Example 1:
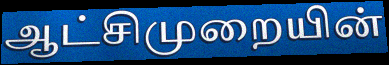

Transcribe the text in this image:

ஆட்சிமுறையின்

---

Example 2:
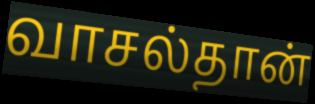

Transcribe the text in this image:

வாசல்தான்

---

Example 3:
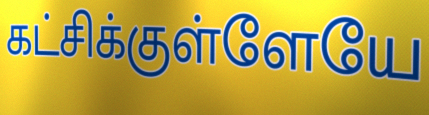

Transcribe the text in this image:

கட்சிக்குள்ளேயே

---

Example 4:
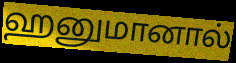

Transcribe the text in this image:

ஹனுமானால்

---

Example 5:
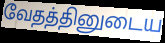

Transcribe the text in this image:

வேதத்தினுடைய